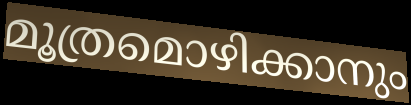
മൂത്രമൊഴിക്കാനും